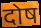
दोष